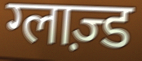
ग्लाज़्ड